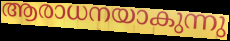
ആരാധനയാകുന്നു